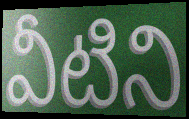
వీటిని